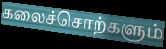
கலைச்சொற்களும்